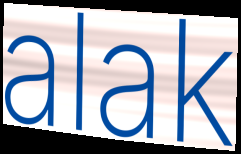
alak